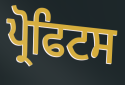
ਪ੍ਰੋਫਿਟਸ